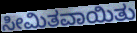
ಸೀಮಿತವಾಯಿತು